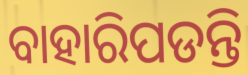
ବାହାରିପଡନ୍ତି